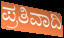
ಪ್ರತಿವಾದಿ